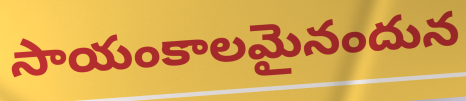
సాయంకాలమైనందున